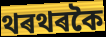
থৰথৰকৈ